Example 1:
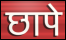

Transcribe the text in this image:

छापे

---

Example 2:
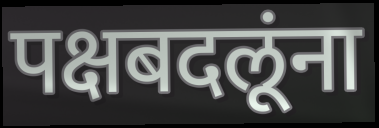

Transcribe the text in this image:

पक्षबदलूंना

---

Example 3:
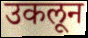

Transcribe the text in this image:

उकलून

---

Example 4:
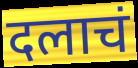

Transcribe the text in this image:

दलाचं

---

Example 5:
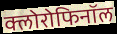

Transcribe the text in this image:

क्लोरोफिनॉल